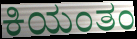
ಕಿಯಂತಂ